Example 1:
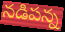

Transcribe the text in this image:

నడిపన్న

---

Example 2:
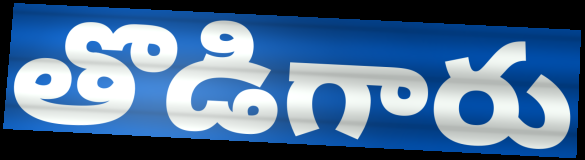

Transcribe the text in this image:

తొడిగారు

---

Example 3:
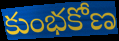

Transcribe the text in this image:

కుంభకోణ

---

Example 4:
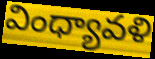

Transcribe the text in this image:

వింధ్యావళి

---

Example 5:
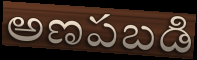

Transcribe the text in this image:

అణపబడి